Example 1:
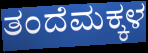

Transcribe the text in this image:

ತಂದೆಮಕ್ಕಳ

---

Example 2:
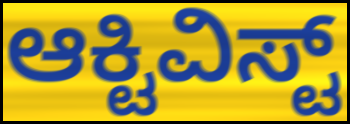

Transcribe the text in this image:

ಆಕ್ಟಿವಿಸ್ಟ್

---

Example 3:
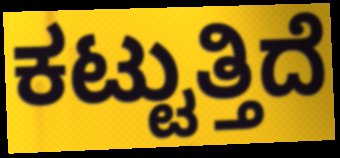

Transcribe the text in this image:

ಕಟ್ಟುತ್ತಿದೆ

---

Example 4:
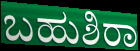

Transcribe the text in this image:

ಬಹುಶಿರಾ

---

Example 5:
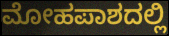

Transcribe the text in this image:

ಮೋಹಪಾಶದಲ್ಲಿ